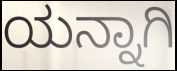
ಯನ್ನಾಗಿ